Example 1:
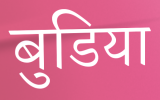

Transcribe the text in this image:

बुडिया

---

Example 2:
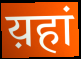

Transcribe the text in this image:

य़हां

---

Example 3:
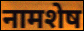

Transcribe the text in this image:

नामशेष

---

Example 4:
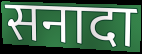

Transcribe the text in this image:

सनादा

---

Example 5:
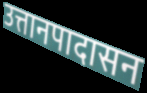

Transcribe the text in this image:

उत्तानपादासन